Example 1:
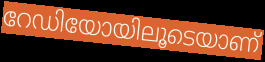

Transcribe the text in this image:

റേഡിയോയിലൂടെയാണ്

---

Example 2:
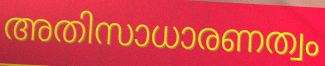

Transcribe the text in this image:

അതിസാധാരണത്വം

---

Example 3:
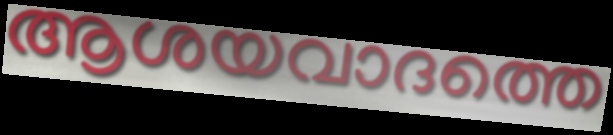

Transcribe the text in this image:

ആശയവാദത്തെ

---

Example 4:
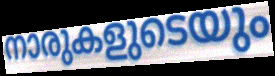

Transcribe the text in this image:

നാരുകളുടെയും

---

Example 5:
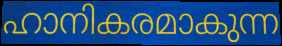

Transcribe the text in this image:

ഹാനികരമാകുന്ന